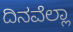
ದಿನವೆಲ್ಲಾ